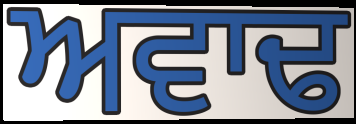
ਅਵਾਢ